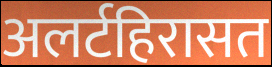
अलर्टहिरासत